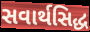
સવાર્થસિદ્ધ